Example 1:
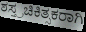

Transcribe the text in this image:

ಶಸ್ತ್ರಚಿಕಿತ್ಸಕರಾಗಿ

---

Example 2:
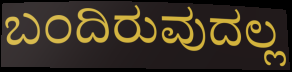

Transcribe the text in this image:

ಬಂದಿರುವುದಲ್ಲ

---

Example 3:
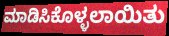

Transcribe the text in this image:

ಮಾಡಿಸಿಕೊಳ್ಳಲಾಯಿತು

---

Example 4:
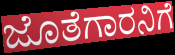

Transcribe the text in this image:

ಜೊತೆಗಾರನಿಗೆ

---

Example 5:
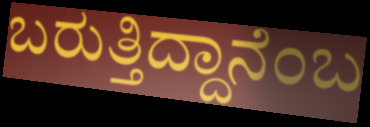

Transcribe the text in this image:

ಬರುತ್ತಿದ್ದಾನೆಂಬ